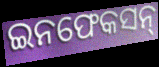
ଇନଫେକସନ୍